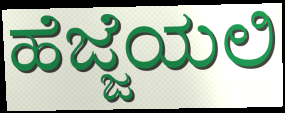
ಹೆಜ್ಜೆಯಲಿ